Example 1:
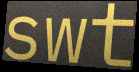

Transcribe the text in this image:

swt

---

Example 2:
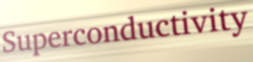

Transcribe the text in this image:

Superconductivity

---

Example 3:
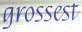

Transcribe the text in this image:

grossest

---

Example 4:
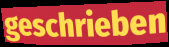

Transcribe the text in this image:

geschrieben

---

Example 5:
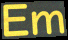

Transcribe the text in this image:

Em